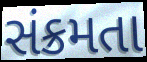
સંક્રમતા